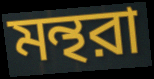
মন্থরা